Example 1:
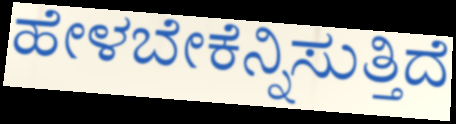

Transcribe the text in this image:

ಹೇಳಬೇಕೆನ್ನಿಸುತ್ತಿದೆ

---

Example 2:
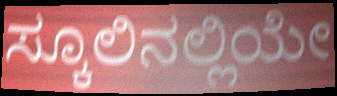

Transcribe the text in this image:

ಸ್ಕೂಲಿನಲ್ಲಿಯೇ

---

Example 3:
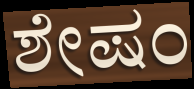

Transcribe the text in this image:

ಶೇಷಂ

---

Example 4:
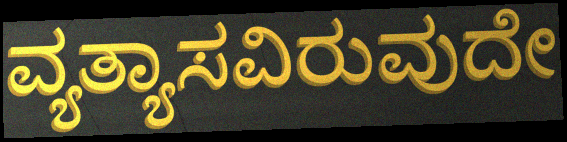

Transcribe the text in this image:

ವ್ಯತ್ಯಾಸವಿರುವುದೇ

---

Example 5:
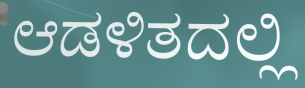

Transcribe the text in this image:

ಆಡಳಿತದಲ್ಲಿ